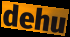
dehu